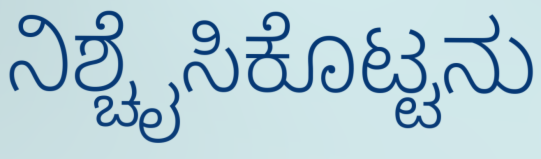
ನಿಶ್ಚೈಸಿಕೊಟ್ಟನು